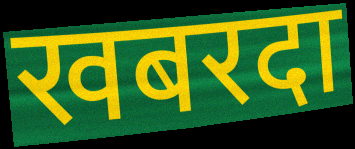
खबरदा